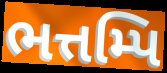
ભત્તમ્પિ